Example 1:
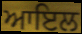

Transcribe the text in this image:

ਆਇਲ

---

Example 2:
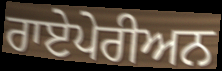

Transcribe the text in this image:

ਰਾਏਪੇਰੀਅਨ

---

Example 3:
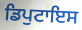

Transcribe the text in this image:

ਡਿਪੁਟਾਇਸ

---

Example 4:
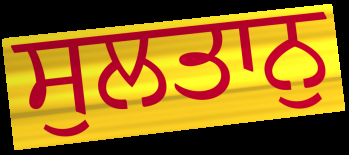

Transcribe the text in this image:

ਸੁਲਤਾਨੁ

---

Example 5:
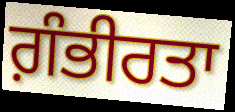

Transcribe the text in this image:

ਗ਼ੰਭੀਰਤਾ